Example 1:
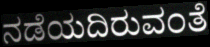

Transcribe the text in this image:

ನಡೆಯದಿರುವಂತೆ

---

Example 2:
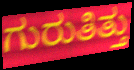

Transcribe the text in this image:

ಗುರುತಿತ್ತು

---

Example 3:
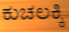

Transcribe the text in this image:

ಕುಚಲಕ್ಕಿ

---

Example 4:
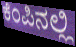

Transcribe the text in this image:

ಕೆಂಪಿನಲ್ಲಿ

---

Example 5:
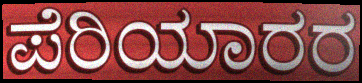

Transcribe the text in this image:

ಪೆರಿಯಾರರ